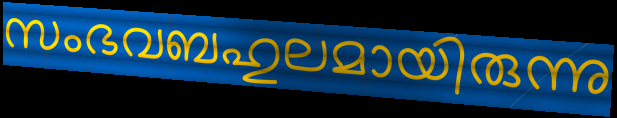
സംഭവബഹുലമായിരുന്നു